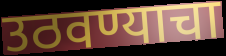
उठवण्याचा